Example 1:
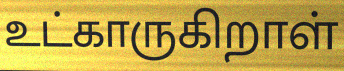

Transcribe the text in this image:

உட்காருகிறாள்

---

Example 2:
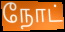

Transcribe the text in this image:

நோட்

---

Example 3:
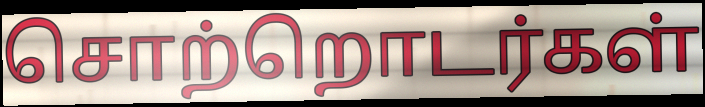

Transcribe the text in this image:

சொற்றொடர்கள்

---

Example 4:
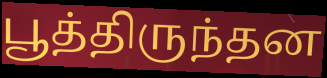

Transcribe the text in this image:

பூத்திருந்தன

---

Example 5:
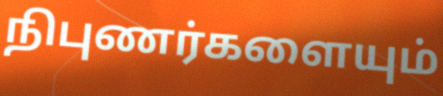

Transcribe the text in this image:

நிபுணர்களையும்